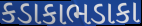
કડાકાભડાકા